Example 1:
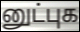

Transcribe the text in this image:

னுட்புக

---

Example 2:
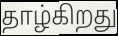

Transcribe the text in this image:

தாழ்கிறது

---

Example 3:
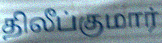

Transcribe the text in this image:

திலீப்குமார்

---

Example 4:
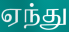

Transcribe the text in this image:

ஏந்து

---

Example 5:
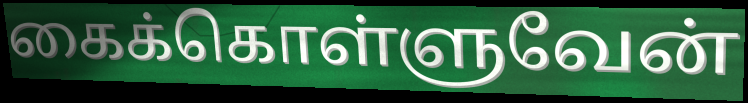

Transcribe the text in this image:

கைக்கொள்ளுவேன்